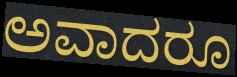
ಅವಾದರೂ